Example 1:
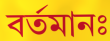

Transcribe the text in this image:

বর্তমানঃ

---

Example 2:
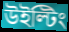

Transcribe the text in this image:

উইল্টিং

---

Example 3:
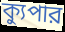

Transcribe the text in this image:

ক্যুপার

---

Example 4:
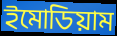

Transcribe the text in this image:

ইমোডিয়াম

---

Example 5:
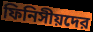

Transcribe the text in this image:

ফিনিসীয়দের